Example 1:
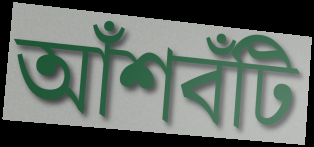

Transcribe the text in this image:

আঁশবঁটি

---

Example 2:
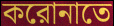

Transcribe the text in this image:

করোনাতে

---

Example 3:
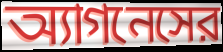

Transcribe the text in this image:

অ্যাগনেসের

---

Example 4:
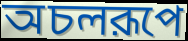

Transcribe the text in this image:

অচলরূপে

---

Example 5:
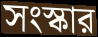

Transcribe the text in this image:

সংস্কার